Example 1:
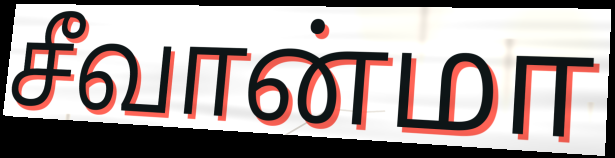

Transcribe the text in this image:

சீவான்மா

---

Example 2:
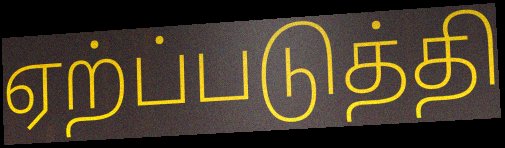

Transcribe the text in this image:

ஏற்ப்படுத்தி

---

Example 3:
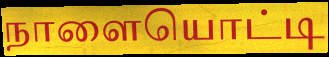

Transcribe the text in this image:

நாளையொட்டி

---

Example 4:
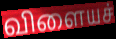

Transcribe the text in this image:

விளையச்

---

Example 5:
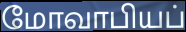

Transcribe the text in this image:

மோவாபியப்